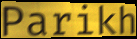
Parikh